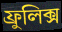
ফ্রুলিক্স